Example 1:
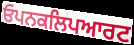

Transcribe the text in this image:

ਓਪਨਕਲਿਪਆਰਟ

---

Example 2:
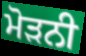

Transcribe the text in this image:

ਮੋੜਨੀ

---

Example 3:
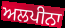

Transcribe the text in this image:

ਅਲਪੀਨਾ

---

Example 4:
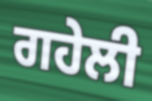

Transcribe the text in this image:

ਗਹੇਲੀ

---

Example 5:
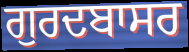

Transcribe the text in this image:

ਗੁਰਦਬਾਸਰ